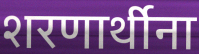
शरणार्थीना